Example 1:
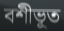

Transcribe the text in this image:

বশীভূত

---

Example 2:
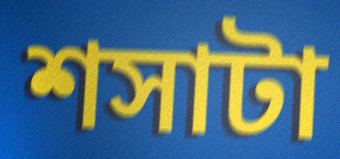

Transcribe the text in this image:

শসাটা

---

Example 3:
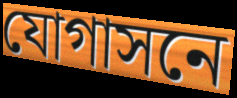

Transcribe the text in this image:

যোগাসনে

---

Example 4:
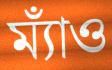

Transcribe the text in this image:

ম্যাঁও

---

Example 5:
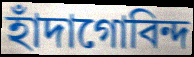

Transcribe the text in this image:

হাঁদাগোবিন্দ